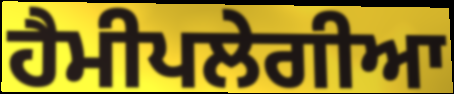
ਹੈਮੀਪਲੇਗੀਆ